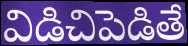
విడిచిపెడితే